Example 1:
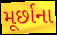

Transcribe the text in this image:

મૂર્છાના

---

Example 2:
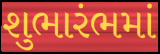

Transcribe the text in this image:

શુભારંભમાં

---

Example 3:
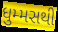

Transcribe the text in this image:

ધુમ્મસથી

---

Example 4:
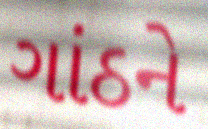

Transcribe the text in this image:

ગાંઠને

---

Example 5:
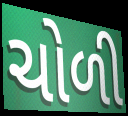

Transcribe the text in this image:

ચોળી